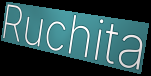
Ruchita